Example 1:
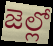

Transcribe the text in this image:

జెల్లో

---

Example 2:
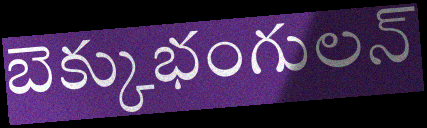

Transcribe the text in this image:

బెక్కుభంగులన్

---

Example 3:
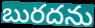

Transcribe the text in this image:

బురదను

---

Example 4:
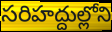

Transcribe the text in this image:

సరిహద్దుల్లోని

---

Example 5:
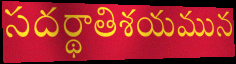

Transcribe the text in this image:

సదర్థాతిశయమున